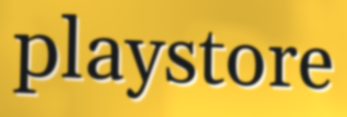
playstore